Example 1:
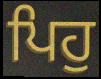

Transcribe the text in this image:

ਪਿਹੁ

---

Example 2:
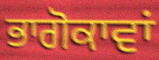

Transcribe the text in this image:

ਭਾਗੋਕਾਵਾਂ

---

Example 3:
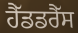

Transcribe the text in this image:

ਹੈੱਡਡਰੈੱਸ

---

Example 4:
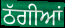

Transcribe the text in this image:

ਠੱਗੀਆਂ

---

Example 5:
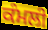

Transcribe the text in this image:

ਕੰਮਲੀ